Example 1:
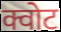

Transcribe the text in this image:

क्वोट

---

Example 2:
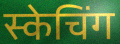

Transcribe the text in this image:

स्केचिंग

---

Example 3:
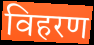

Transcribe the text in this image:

विहरण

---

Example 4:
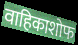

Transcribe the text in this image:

वाहिकाशोफ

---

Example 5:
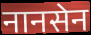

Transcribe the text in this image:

नानसेन